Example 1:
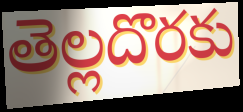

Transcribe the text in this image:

తెల్లదొరకు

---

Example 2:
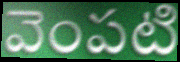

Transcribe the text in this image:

వెంపటి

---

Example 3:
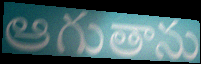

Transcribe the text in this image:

ఆగుతాను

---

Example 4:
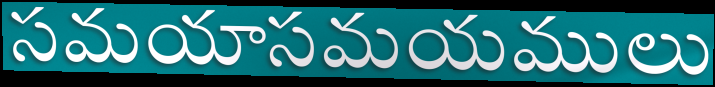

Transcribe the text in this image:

సమయాసమయములు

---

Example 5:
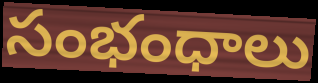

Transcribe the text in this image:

సంభంధాలు